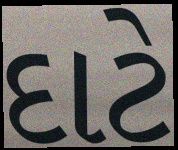
દાટે